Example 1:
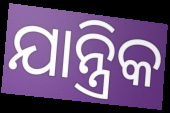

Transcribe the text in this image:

ଯାନ୍ତ୍ରିକ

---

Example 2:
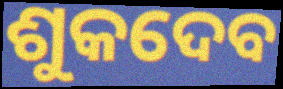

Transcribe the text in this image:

ଶୁକଦେବ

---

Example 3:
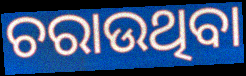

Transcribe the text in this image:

ଚରାଉଥିବା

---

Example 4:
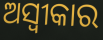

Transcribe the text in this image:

ଅସ୍ୱୀକାର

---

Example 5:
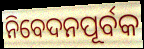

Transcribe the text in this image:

ନିବେଦନପୂର୍ବକ